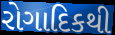
રોગાદિકથી